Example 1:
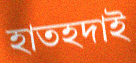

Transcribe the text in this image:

হাতহদাই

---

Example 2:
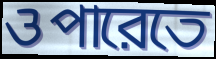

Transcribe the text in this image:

ওপারেতে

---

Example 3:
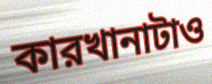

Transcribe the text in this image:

কারখানাটাও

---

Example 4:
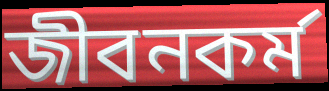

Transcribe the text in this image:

জীবনকর্ম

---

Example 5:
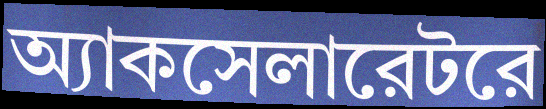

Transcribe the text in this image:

অ্যাকসেলারেটরে